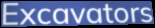
Excavators